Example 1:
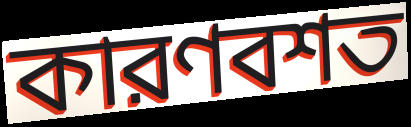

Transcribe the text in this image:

কারণবশত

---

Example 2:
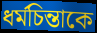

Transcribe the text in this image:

ধর্মচিন্তাকে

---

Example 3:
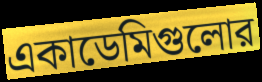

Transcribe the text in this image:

একাডেমিগুলোর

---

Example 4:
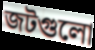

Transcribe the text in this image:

জটগুলো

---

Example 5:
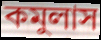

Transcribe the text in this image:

কমুলাস